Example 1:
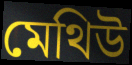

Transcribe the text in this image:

মেথিউ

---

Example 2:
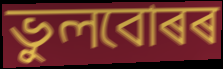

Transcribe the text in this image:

ভুলবোৰৰ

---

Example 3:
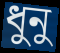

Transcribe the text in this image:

ধুনু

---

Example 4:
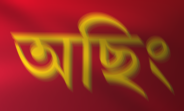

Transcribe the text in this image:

অছিং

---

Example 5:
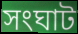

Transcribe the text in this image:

সংঘাট